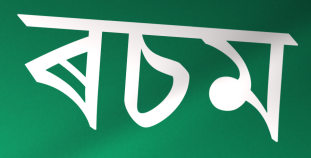
ৰচম